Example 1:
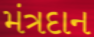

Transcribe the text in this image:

મંત્રદાન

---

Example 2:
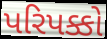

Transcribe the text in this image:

પરિપક્કો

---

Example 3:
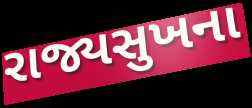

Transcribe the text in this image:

રાજ્યસુખના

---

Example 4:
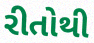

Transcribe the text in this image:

રીતોથી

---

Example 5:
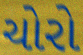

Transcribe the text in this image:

ચોરો